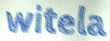
witela